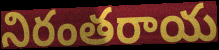
నిరంతరాయ